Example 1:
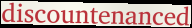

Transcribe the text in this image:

discountenanced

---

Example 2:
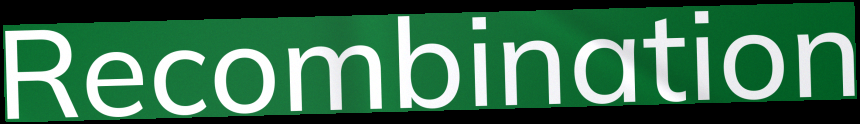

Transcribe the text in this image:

Recombination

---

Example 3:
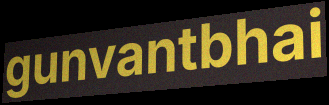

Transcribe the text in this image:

gunvantbhai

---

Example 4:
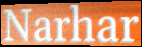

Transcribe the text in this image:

Narhar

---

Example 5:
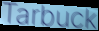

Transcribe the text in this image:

Tarbuck